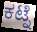
ಕಟ್ನೆ